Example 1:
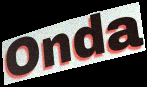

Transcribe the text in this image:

Onda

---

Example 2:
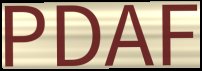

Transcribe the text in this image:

PDAF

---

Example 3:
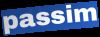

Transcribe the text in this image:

passim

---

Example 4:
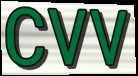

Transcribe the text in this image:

CVV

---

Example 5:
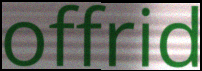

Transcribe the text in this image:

offrid